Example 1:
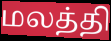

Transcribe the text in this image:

மலத்தி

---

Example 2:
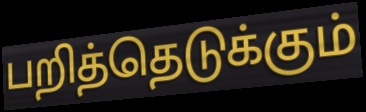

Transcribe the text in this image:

பறித்தெடுக்கும்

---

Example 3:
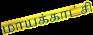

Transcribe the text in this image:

மாயக்காட்சி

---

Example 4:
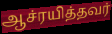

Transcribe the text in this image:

ஆச்ரயித்தவர்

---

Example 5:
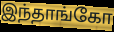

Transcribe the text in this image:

இந்தாங்கோ